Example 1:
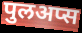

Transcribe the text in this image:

पुलअप्स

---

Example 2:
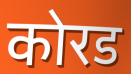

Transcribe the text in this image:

कोरड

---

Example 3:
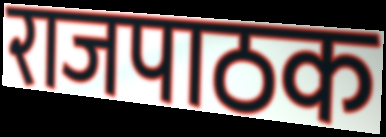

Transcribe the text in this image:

राजपाठक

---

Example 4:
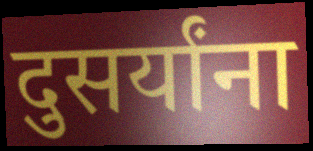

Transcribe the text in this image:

दुसर्यांना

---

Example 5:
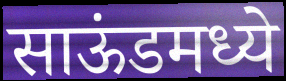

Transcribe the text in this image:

साऊंडमध्ये